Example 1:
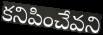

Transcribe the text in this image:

కనిపించేవని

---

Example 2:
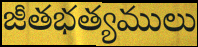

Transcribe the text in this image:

జీతభత్యములు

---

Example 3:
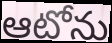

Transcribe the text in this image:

ఆటోను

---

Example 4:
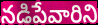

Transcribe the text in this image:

నడిపేవారిని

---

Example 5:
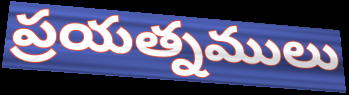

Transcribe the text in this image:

ప్రయత్నములు